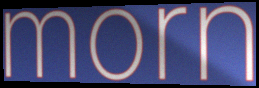
morn